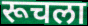
रूचला